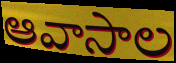
ఆవాసాల